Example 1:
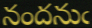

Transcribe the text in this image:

నందనుఁ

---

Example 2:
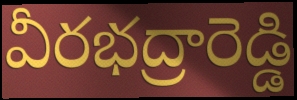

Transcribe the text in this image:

వీరభద్రారెడ్డి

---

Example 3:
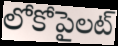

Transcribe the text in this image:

లోకోపైలట్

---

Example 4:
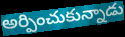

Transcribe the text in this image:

అర్పించుకున్నాడు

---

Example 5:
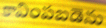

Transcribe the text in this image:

కావింపబడెను